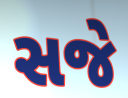
સજે